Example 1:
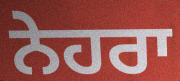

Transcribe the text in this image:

ਨੇਹਰਾ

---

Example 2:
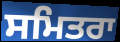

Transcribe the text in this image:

ਸਮਿਤਰਾ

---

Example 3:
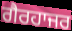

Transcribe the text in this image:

ਗੈਰਹਾਜਰ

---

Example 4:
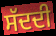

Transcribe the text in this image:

ਸੱਦਦੀ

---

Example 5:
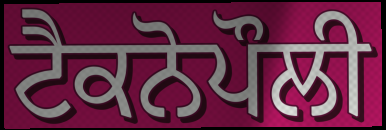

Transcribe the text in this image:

ਟੈਕਨੋਪੌਲੀ